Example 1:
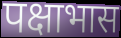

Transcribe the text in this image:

पक्षाभास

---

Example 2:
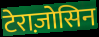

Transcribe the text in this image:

टेराज़ोसिन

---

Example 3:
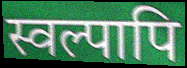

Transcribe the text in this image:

स्वल्पापि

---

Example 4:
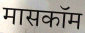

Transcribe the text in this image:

मासकॉम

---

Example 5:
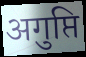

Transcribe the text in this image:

अगुप्ति